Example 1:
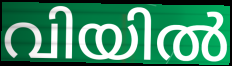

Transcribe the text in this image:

വിയിൽ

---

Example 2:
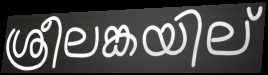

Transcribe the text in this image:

ശ്രീലങ്കയില്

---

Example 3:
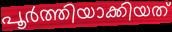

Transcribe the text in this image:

പൂർത്തിയാക്കിയത്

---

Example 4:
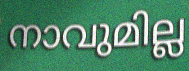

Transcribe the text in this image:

നാവുമില്ല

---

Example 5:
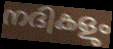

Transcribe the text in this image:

നദികളും